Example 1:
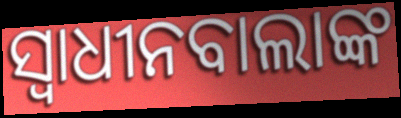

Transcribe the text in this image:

ସ୍ୱାଧୀନବାଲାଙ୍କ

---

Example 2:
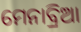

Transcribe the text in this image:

ମେନାବ୍ରିଆ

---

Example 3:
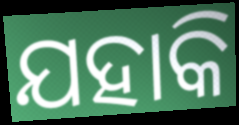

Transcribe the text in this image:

ଯହାକି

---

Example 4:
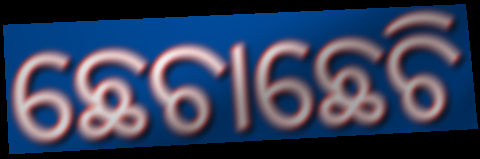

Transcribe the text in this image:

ଛେଚାଛେଚି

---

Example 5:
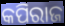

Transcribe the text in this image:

କପିରାଜ